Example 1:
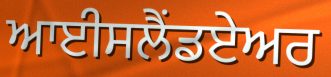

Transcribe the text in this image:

ਆਈਸਲੈਂਡਏਅਰ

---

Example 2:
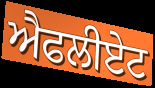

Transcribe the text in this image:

ਐਫਲੀਏਟ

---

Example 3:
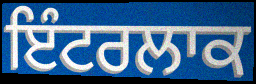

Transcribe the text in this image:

ਇੰਟਰਲਾਕ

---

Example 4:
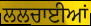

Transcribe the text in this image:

ਲਲਚਾਈਆਂ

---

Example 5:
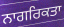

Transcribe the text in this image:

ਨਾਗਰਿਕਤਾ